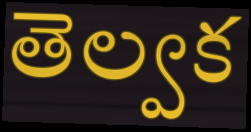
తెల్వక